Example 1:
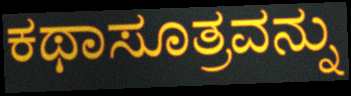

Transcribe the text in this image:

ಕಥಾಸೂತ್ರವನ್ನು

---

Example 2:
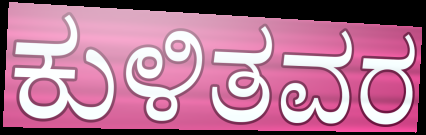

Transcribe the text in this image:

ಕುಳಿತವರ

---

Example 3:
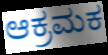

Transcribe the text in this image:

ಆಕ್ರಮಕ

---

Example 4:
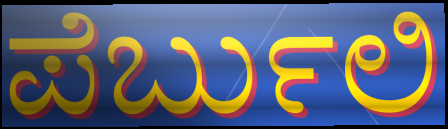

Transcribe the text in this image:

ಪೆರ್ಬುಲಿ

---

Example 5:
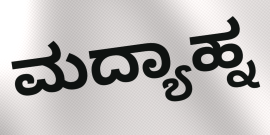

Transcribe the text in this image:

ಮದ್ಯಾಹ್ನ